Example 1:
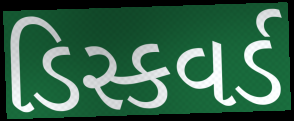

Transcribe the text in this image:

ડિસ્કવર્ડ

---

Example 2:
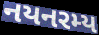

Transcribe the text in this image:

નયનરમ્ય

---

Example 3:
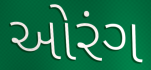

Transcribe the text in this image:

ઓરંગ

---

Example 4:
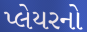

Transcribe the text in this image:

પ્લેયરનો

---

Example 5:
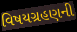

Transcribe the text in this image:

વિષયગ્રહણની